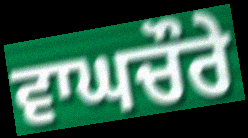
ਵਾਘਚੌਰੇ